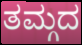
ತಮ್ಗದ